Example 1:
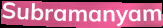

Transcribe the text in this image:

Subramanyam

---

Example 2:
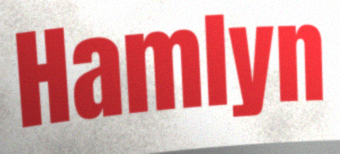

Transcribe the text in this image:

Hamlyn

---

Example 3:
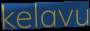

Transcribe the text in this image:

kelavu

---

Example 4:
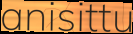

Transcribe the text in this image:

anisittu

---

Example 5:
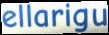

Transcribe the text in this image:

ellarigu